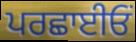
ਪਰਛਾਈਓਂ